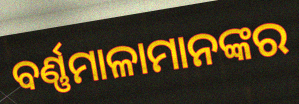
ବର୍ଣ୍ଣମାଳାମାନଙ୍କର